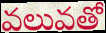
వలువతో